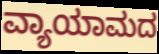
ವ್ಯಾಯಾಮದ